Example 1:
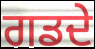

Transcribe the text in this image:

ਗਡਦੇ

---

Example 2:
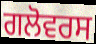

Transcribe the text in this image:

ਗਲੋਵਰਸ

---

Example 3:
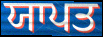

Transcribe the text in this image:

ਯਾਪਤ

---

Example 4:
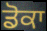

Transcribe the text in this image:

ਡੋਕਾ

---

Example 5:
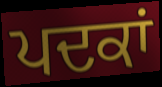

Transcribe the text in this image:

ਪਦਕਾਂ